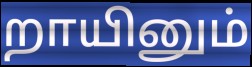
றாயினும்